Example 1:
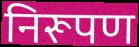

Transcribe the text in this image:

निरूपण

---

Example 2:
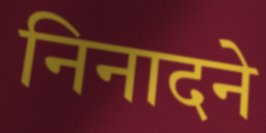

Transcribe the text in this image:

निनादने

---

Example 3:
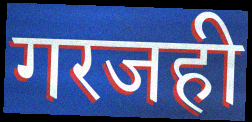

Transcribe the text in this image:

गरजही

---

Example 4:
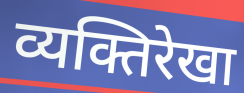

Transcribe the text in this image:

व्यक्तिरेखा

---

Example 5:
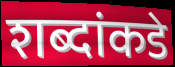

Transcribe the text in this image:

शब्दांकडे